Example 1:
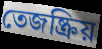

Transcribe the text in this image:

তেজষ্ক্রিয়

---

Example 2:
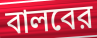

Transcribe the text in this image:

বালবের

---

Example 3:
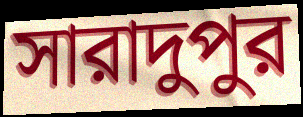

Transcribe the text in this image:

সারাদুপুর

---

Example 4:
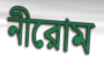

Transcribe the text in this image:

নীরোম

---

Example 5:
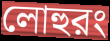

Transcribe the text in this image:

লোহুরং